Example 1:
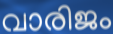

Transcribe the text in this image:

വാരിജം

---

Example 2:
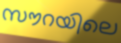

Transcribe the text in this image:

സൗറയിലെ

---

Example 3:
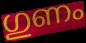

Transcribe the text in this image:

ഗുണം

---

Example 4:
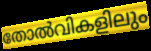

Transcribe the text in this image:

തോൽവികളിലും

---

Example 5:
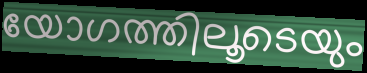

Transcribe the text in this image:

യോഗത്തിലൂടെയും